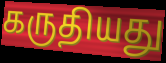
கருதியது